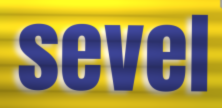
sevel